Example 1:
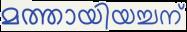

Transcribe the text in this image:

മത്തായിയച്ചന്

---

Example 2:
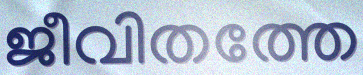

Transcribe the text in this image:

ജീവിതത്തേ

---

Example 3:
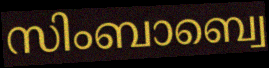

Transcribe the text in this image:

സിംബാബ്വെ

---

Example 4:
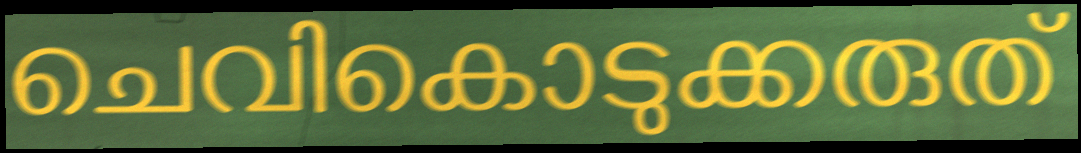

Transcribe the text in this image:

ചെവികൊടുക്കരുത്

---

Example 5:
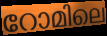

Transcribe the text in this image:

റോമിലെ